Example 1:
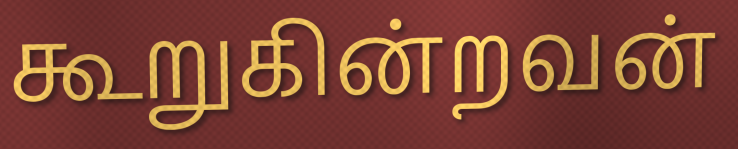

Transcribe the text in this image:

கூறுகின்றவன்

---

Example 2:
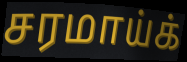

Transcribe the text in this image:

சரமாய்க்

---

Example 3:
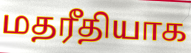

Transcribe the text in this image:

மதரீதியாக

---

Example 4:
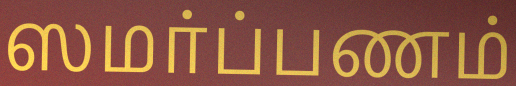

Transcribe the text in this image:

ஸமர்ப்பணம்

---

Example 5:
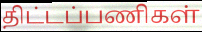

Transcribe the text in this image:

திட்டப்பணிகள்